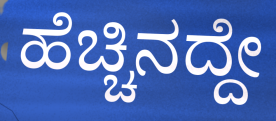
ಹೆಚ್ಚಿನದ್ದೇ